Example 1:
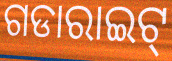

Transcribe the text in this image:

ଗଡାରାଇଟ୍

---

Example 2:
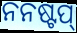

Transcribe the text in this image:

ନନଷ୍ଟପ୍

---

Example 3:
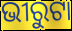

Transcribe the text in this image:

ଭୀରୁଟା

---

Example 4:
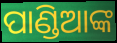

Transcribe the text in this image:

ପାଣ୍ଡିଆଙ୍କ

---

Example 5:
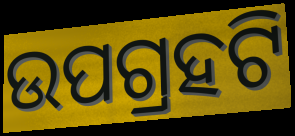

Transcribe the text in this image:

ଉପଗ୍ରହଟି